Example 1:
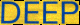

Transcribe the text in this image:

DEEP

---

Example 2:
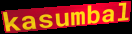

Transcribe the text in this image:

kasumbal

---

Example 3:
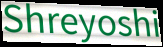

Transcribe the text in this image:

Shreyoshi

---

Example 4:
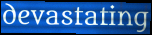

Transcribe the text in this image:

devastating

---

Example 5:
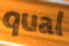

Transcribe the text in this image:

qual